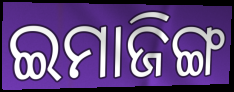
ଇମାଜିଙ୍ଗ